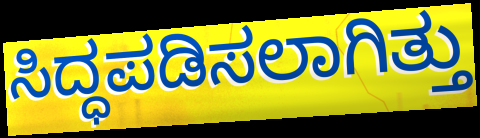
ಸಿದ್ಧಪಡಿಸಲಾಗಿತ್ತು